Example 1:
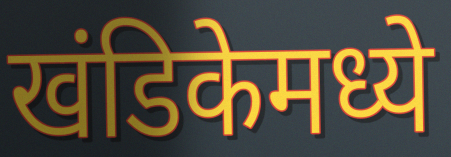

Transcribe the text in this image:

खंडिकेमध्ये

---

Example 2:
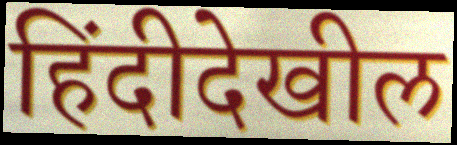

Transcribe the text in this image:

हिंदीदेखील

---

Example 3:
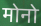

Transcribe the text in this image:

मोनो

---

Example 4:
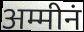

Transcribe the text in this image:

अम्मीनं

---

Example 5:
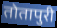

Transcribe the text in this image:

तोतापुरी